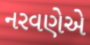
નરવણેએ